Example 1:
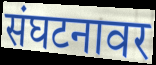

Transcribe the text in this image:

संघटनावर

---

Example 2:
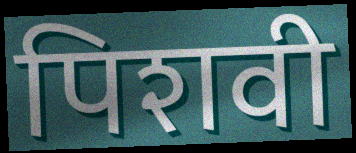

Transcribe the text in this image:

पिशवी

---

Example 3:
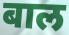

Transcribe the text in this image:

बाल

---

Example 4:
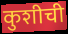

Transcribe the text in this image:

कुशीची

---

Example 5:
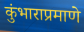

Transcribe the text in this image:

कुंभाराप्रमाणे